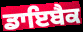
ਡਾਇਬੈਕ